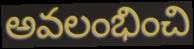
అవలంభించి